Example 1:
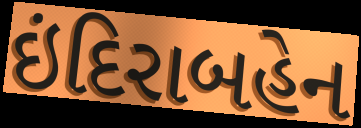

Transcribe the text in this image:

ઇંદિરાબહેન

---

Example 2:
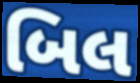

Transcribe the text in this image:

બિલ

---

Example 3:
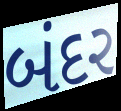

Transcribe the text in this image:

બંદર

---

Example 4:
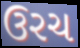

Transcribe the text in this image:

ઉરચ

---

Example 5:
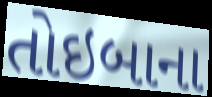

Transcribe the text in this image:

તોઇબાના